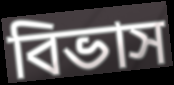
বিভাস